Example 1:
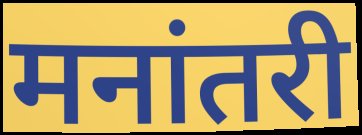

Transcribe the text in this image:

मनांतरी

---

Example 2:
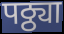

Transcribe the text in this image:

पठ्ठ्या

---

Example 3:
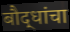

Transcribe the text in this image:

बौद्धांचा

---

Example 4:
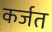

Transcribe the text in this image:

कर्जत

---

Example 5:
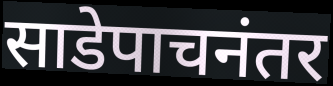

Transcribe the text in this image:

साडेपाचनंतर